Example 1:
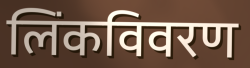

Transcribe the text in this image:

लिंकविवरण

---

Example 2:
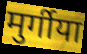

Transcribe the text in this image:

मुर्गीया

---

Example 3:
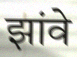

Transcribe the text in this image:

झांवे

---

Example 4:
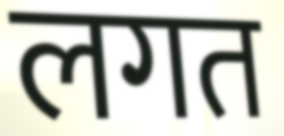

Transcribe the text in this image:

लगत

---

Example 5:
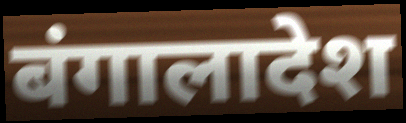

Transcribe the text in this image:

बंगालादेश